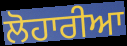
ਲੋਹਾਰੀਆ